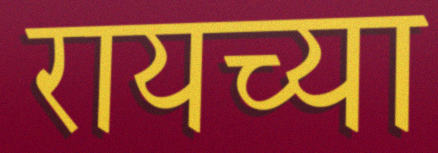
रायच्या